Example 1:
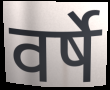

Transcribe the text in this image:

वर्षे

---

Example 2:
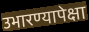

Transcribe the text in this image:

उभारण्यापेक्षा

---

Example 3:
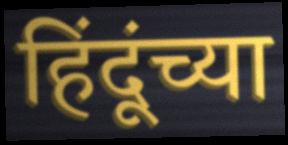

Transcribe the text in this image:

हिंदूंच्या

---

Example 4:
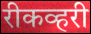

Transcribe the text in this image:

रीकव्हरी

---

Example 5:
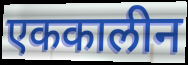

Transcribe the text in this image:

एककालीन